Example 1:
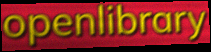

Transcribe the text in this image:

openlibrary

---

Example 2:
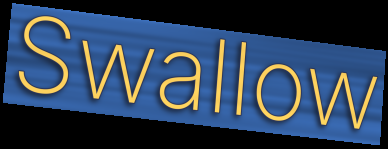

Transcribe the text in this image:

Swallow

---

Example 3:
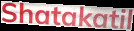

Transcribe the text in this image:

Shatakatil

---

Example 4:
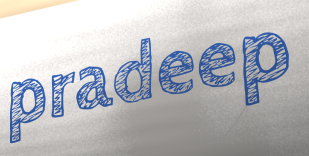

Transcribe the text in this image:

pradeep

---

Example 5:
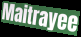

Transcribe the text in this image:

Maitrayee